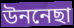
উননেছা